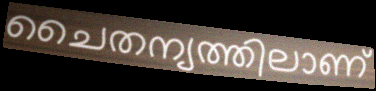
ചൈതന്യത്തിലാണ്